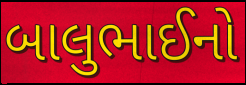
બાલુભાઈનો